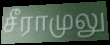
சீராமுலு